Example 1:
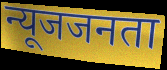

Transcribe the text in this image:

न्यूजजनता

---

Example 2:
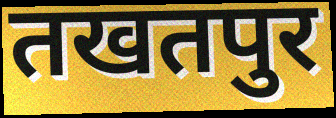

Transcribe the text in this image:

तखतपुर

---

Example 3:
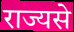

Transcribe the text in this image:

राज्यसे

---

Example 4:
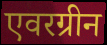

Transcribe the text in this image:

एवरग्रीन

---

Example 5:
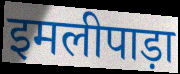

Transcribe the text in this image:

इमलीपाड़ा